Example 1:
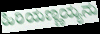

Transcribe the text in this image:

ಹಿರಿಯಣ್ಣಯ್ಯನು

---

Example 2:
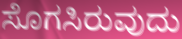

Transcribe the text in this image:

ಸೊಗಸಿರುವುದು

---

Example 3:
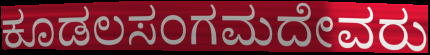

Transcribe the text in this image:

ಕೂಡಲಸಂಗಮದೇವರು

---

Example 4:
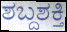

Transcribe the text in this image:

ಶಬ್ದಶಕ್ತಿ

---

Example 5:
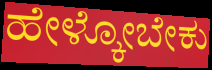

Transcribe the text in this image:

ಹೇಳ್ಕೋಬೇಕು